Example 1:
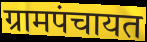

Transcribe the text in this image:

ग्रामपंचायत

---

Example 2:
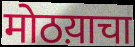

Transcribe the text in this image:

मोठय़ाचा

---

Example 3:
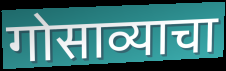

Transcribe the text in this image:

गोसाव्याचा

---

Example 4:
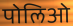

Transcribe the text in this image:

पोलिओ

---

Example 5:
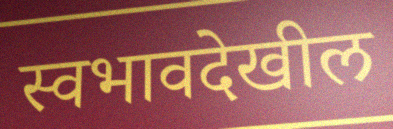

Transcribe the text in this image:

स्वभावदेखील